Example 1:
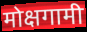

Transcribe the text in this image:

मोक्षगामी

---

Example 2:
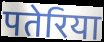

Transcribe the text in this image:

पतेरिया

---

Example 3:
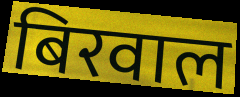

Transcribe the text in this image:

बिरवाल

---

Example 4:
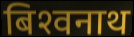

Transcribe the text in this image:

बिश्वनाथ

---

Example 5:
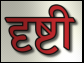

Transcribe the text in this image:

दृष्टी